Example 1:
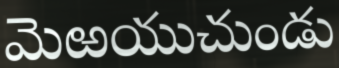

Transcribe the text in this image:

మెఱయుచుండు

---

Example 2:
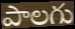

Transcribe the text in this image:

పాలగు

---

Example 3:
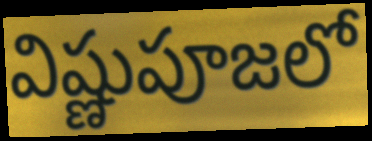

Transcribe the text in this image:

విష్ణుపూజలో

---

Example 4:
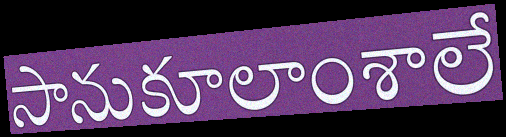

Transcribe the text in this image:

సానుకూలాంశాలే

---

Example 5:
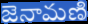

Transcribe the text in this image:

జెనామణి